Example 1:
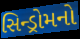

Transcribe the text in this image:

સિન્ડ્રોમનો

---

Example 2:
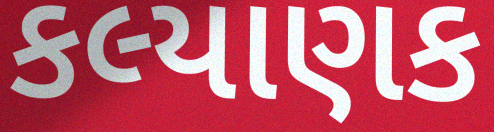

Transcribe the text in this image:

કલ્યાણક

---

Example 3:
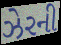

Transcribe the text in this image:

ઝેરની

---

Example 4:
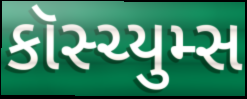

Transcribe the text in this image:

કૉસ્ચ્યુમ્સ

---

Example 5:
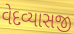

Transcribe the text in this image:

વેદવ્યાસજી